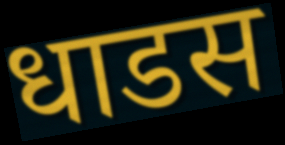
धाडस